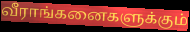
வீராங்கனைகளுக்கும்